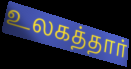
உலகத்தார்